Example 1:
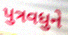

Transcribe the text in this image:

પુત્રવધુને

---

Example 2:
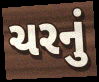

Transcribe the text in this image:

ચરનું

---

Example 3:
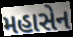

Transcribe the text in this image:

મહાસેન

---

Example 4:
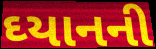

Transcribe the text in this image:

ઘ્યાનની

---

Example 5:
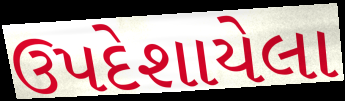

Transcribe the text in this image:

ઉપદેશાયેલા